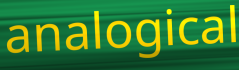
analogical